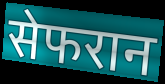
सेफरान